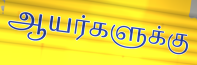
ஆயர்களுக்கு